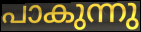
പാകുന്നു